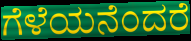
ಗೆಳೆಯನೆಂದರೆ